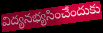
విద్యనభ్యసించేందుకు